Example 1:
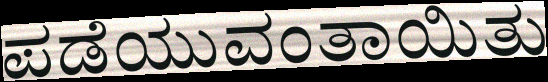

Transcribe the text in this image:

ಪಡೆಯುವಂತಾಯಿತು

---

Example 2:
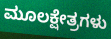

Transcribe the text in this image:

ಮೂಲಕ್ಷೇತ್ರಗಳು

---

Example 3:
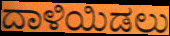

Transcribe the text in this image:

ದಾಳಿಯಿಡಲು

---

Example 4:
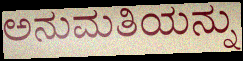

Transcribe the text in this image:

ಅನುಮತಿಯನ್ನು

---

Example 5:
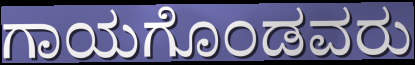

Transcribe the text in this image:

ಗಾಯಗೊಂಡವರು